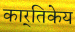
कार्तिकेय